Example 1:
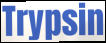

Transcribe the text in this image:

Trypsin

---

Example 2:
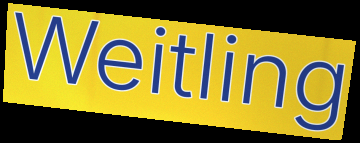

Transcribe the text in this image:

Weitling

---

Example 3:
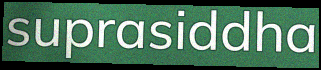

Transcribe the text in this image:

suprasiddha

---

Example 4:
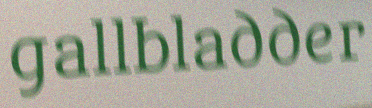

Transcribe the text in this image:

gallbladder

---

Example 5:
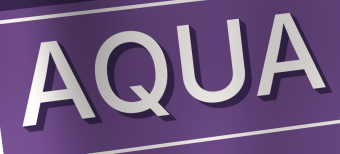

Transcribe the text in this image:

AQUA